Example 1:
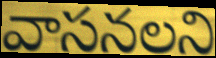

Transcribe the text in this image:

వాసనలని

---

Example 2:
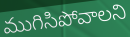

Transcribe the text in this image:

ముగిసిపోవాలని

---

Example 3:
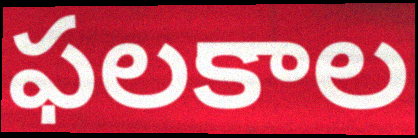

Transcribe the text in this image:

ఫలకాల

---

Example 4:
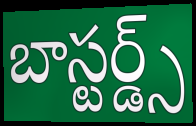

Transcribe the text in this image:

బాస్టర్డ్స్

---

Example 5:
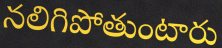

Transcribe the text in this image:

నలిగిపోతుంటారు